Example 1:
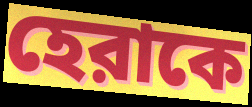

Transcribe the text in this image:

হেরাকে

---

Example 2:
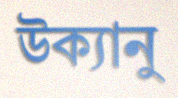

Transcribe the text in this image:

উক্যানু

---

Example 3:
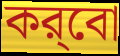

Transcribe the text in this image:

কর্‌বো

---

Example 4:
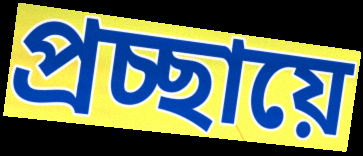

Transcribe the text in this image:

প্রচ্ছায়ে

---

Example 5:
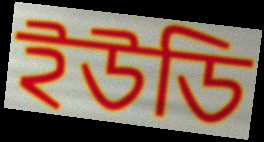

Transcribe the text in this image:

ইউডি